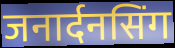
जनार्दनसिंग